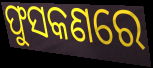
ଫୁସକଣରେ